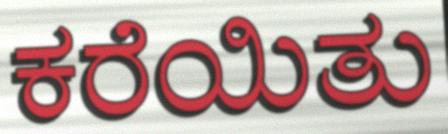
ಕರೆಯಿತು